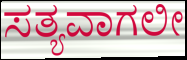
ಸತ್ಯವಾಗಲೀ